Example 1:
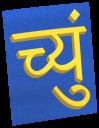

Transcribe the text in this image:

च्युं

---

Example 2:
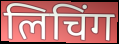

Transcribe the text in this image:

लिचिंग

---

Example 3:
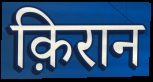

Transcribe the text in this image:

क़िरान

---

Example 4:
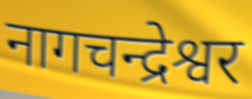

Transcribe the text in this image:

नागचन्द्रेश्वर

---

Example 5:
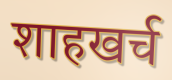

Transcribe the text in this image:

शाहखर्च